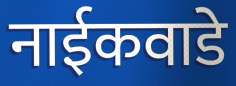
नाईकवाडे